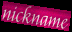
nickname